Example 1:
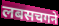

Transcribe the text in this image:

लबसचगने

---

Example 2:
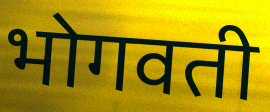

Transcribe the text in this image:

भोगवती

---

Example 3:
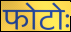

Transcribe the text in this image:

फोटोः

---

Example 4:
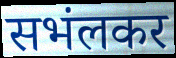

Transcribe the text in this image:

सभंलकर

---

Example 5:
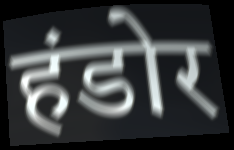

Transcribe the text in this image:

हंडोर